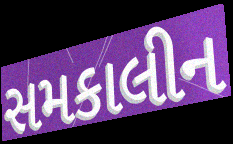
સમકાલીન